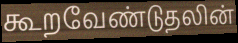
கூறவேண்டுதலின்